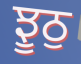
ਝੂਠੁ